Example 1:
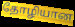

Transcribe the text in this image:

தோழியான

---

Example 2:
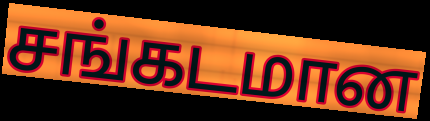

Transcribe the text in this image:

சங்கடமான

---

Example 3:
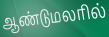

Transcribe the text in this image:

ஆண்டுமலரில்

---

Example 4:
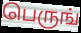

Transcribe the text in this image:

பெருங்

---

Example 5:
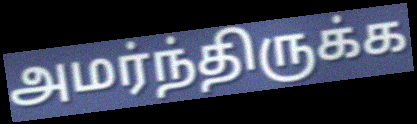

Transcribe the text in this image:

அமர்ந்திருக்க